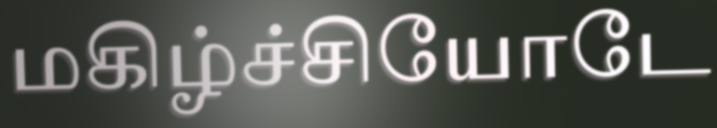
மகிழ்ச்சியோடே